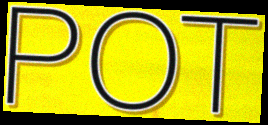
POT